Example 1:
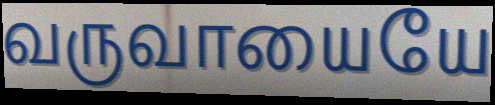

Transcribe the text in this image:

வருவாயையே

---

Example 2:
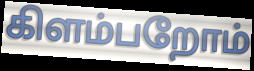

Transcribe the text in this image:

கிளம்பறோம்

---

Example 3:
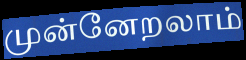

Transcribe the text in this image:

முன்னேறலாம்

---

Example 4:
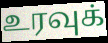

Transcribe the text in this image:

உரவுக்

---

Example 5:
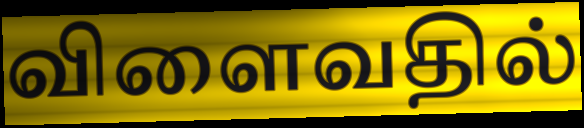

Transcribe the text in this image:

விளைவதில்